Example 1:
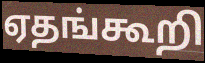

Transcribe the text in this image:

ஏதங்கூறி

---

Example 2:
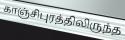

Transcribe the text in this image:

காஞ்சிபுரத்திலிருந்த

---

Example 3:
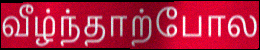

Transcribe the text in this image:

வீழ்ந்தாற்போல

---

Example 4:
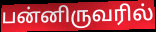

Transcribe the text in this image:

பன்னிருவரில்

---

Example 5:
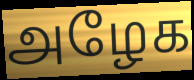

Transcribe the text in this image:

அழேக